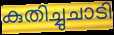
കുതിച്ചുചാടി